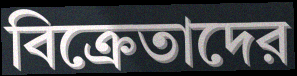
বিক্রেতাদের